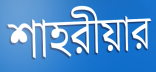
শাহরীয়ার